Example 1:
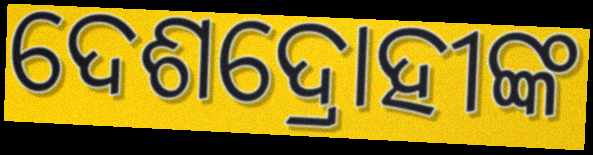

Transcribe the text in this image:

ଦେଶଦ୍ରୋହୀଙ୍କ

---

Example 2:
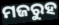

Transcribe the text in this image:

ମଜରୁହ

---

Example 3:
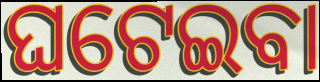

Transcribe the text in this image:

ଘଟେଇବା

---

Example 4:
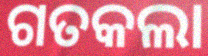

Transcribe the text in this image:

ଗତକଲା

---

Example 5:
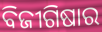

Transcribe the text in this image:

ବିଜୀଗିଷାର